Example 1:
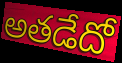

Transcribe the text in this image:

అతడేదో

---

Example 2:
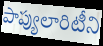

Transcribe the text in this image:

పాప్యులారిటీని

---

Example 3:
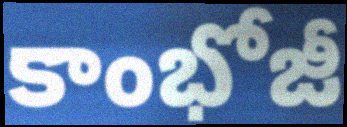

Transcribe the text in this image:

కాంభోజీ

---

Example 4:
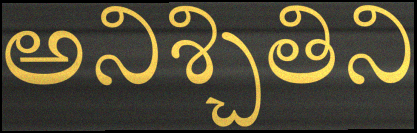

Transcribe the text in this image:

అనిశ్చితిని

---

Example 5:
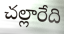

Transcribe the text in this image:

చల్లారేది